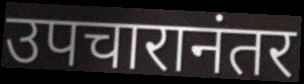
उपचारानंतर